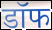
डॉफ